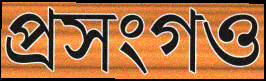
প্ৰসংগও